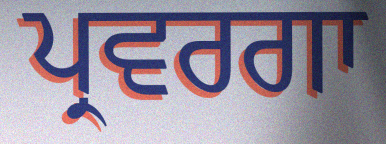
ਪ੍ਰਵਰਗਾ